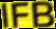
IFB